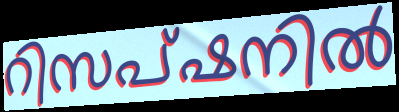
റിസപ്ഷനിൽ